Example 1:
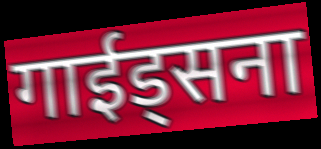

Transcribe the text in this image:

गाईड्सना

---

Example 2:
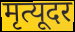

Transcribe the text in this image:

मृत्यूदर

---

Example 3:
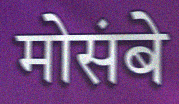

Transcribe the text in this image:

मोसंबे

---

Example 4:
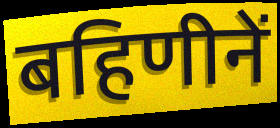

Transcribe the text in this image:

बहिणीनें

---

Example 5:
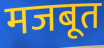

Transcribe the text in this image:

मजबूत